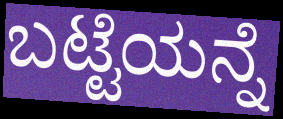
ಬಟ್ಟೆಯನ್ನೆ